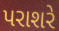
પરાશરે